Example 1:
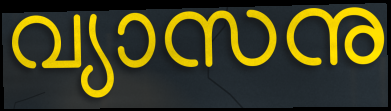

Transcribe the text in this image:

വ്യാസനു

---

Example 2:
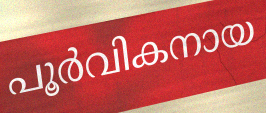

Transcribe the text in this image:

പൂർവികനായ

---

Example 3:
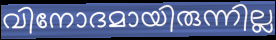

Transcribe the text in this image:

വിനോദമായിരുന്നില്ല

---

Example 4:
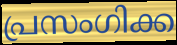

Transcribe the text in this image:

പ്രസംഗിക്ക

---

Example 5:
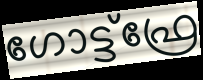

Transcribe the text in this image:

ഗോട്ട്ഫ്രേ